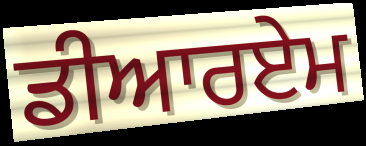
ਡੀਆਰਏਮ